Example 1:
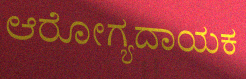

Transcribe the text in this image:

ಆರೋಗ್ಯದಾಯಕ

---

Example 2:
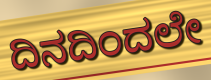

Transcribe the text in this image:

ದಿನದಿಂದಲೇ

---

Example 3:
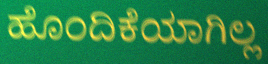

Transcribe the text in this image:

ಹೊಂದಿಕೆಯಾಗಿಲ್ಲ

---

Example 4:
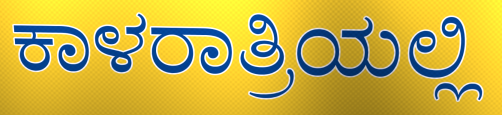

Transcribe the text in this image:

ಕಾಳರಾತ್ರಿಯಲ್ಲಿ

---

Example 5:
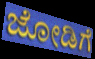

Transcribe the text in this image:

ಜೋಡಿಗೆ